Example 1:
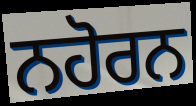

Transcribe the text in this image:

ਨਹੋਰਨ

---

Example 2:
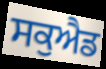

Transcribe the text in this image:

ਸਕੁਐਡ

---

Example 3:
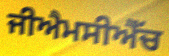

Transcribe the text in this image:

ਜੀਐਮਸੀਐੱਚ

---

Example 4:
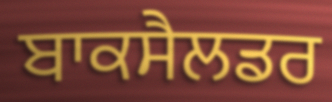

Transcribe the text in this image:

ਬਾਕਸੈਲਡਰ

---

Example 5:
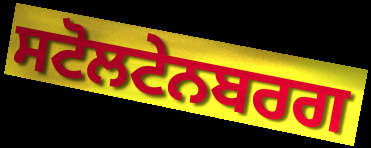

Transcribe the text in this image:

ਸਟੋਲਟੇਨਬਰਗ